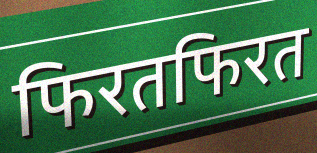
फिरतफिरत